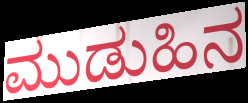
ಮುಡುಹಿನ